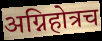
अग्निहोत्रच